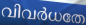
വിവർധതേ